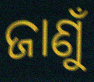
ଜାଣୁଁ